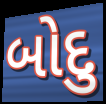
બોદુ